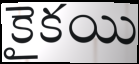
కైకయి